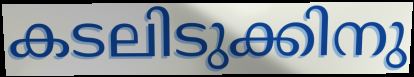
കടലിടുക്കിനു